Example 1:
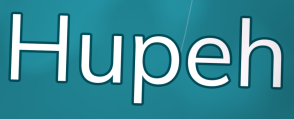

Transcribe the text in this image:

Hupeh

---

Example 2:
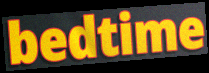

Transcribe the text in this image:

bedtime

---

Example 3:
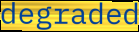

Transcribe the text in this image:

degraded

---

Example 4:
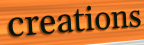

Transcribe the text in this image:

creations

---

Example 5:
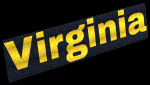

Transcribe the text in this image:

Virginia